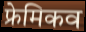
फ्रेमिकव